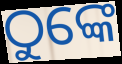
ଠୁଙ୍କେ